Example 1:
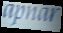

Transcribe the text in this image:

apnar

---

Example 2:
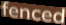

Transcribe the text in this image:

fenced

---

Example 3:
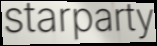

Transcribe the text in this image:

starparty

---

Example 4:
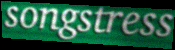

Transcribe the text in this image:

songstress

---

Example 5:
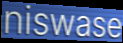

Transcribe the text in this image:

niswase